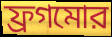
ফ্রগমোর